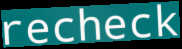
recheck